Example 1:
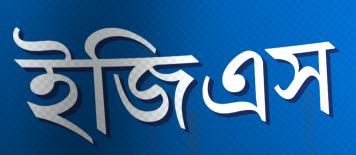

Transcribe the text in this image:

ইজিএস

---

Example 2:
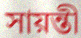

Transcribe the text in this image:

সায়ন্তী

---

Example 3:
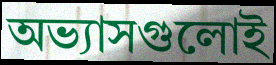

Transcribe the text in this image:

অভ্যাসগুলোই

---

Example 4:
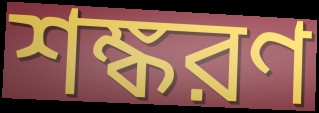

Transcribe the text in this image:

শঙ্করণ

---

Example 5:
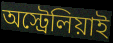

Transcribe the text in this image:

অস্ট্রেলিয়াই